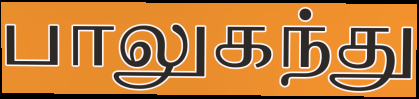
பாலுகந்து